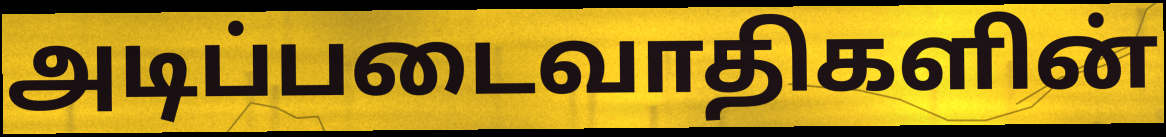
அடிப்படைவாதிகளின்